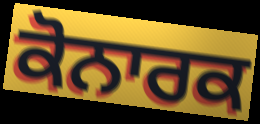
ਕੋਨਾਰਕ